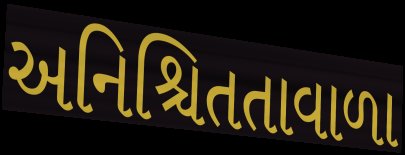
અનિશ્ચિતતાવાળા